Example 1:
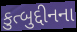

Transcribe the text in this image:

કુત્બુદ્દીનના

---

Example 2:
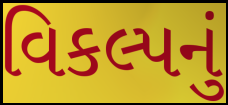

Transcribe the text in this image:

વિકલ્પનું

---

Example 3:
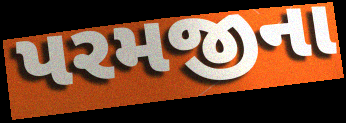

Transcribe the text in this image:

પરમજીના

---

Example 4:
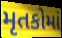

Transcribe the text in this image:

મૃતકોમાં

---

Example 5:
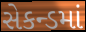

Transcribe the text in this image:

સેકન્ડમાં